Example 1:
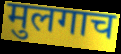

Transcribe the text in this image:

मुलगाच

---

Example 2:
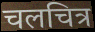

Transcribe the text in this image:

चलचित्र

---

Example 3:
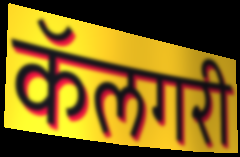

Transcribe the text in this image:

कॅलगरी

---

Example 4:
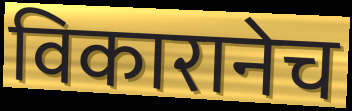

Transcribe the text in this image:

विकारानेच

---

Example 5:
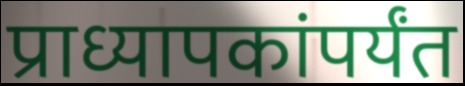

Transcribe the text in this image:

प्राध्यापकांपर्यंत